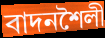
বাদনশৈলী